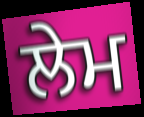
ਲੇਮ